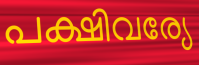
പക്ഷിവര്യേ